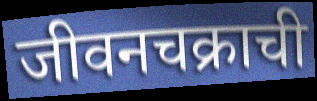
जीवनचक्राची